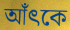
আঁৎকে